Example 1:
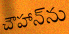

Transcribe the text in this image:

చౌహాన్‌ను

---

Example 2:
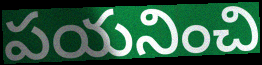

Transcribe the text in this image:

పయనించి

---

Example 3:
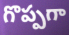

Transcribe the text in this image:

గొప్పగా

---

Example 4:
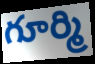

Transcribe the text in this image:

గూర్మి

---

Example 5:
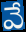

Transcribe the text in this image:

వే